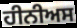
ਹੀਨੀਅਸ